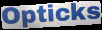
Opticks